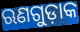
ଋଣଗୁଡ଼ାକ